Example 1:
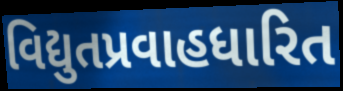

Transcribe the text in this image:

વિદ્યુતપ્રવાહધારિત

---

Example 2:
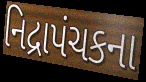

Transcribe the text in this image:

નિદ્રાપંચકના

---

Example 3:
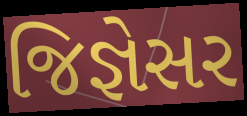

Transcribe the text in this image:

જિજ્ઞેસર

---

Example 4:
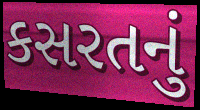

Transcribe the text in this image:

કસરતનું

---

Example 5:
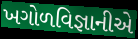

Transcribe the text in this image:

ખગોળવિજ્ઞાનીએ